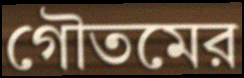
গৌতমের